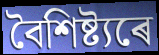
বৈশিষ্ট্যৰে